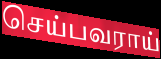
செய்பவராய்